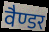
वैण्डर